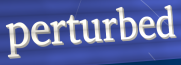
perturbed